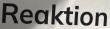
Reaktion